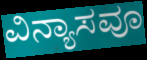
ವಿನ್ಯಾಸವೂ